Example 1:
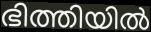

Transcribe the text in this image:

ഭിത്തിയിൽ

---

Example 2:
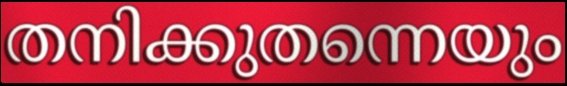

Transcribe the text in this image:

തനിക്കുതന്നെയും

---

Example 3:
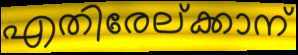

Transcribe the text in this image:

എതിരേല്ക്കാന്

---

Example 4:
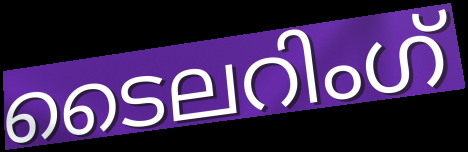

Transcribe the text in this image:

ടൈലറിംഗ്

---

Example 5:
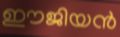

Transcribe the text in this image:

ഈജിയൻ